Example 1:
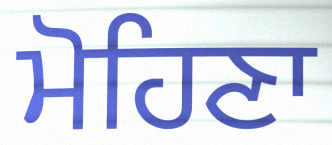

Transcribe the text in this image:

ਮੋਹਿਣਾ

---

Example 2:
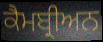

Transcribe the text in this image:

ਕੈਮਬ੍ਰੀਅਨ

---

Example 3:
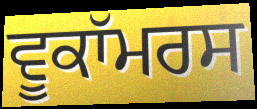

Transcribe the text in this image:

ਵੂਕਾੱਮਰਸ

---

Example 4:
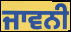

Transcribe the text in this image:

ਜਾਵਨੀ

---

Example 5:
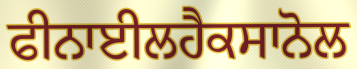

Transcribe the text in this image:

ਫੀਨਾਈਲਹੈਕਸਾਨੋਲ